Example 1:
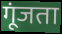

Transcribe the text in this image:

गूंजता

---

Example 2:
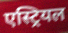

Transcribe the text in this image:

एस्ट्रियल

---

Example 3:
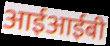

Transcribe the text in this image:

आईआईबी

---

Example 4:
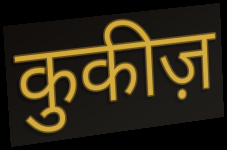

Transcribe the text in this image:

कुकीज़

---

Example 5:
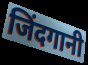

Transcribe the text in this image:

जिंदगानी